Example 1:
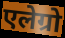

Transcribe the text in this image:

एलेग्रो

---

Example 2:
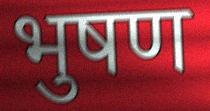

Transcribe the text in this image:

भुषण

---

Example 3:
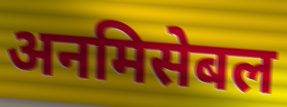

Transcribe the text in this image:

अनमिसेबल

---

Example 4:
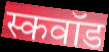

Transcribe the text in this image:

स्कवॉड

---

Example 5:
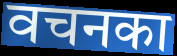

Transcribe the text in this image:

वचनका